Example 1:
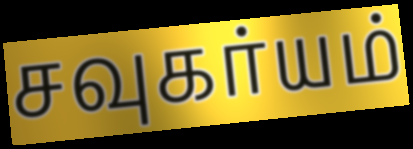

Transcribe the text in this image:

சவுகர்யம்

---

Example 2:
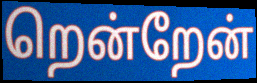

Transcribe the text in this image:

றென்றேன்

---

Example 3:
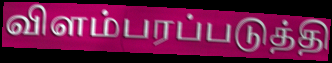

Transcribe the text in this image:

விளம்பரப்படுத்தி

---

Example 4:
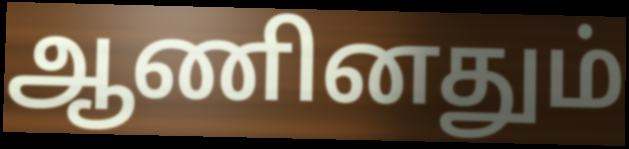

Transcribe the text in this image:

ஆணினதும்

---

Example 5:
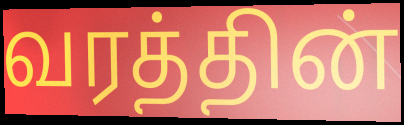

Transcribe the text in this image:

வரத்தின்